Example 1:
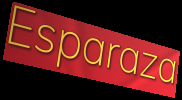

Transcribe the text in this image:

Esparaza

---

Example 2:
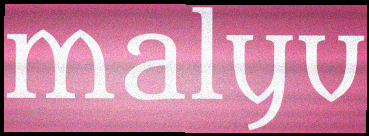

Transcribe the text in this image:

malyu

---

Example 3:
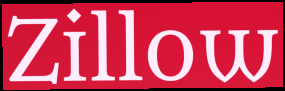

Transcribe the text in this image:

Zillow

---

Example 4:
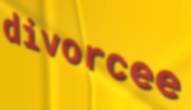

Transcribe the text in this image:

divorcee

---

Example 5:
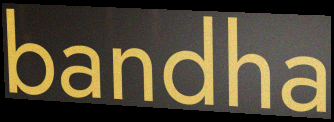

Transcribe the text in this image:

bandha